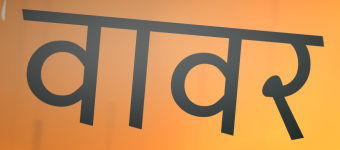
वावर